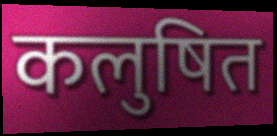
कलुषित